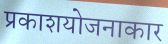
प्रकाशयोजनाकार